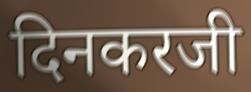
दिनकरजी